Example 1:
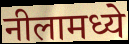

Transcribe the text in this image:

नीलामध्ये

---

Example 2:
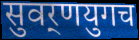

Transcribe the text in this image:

सुवर्णयुगच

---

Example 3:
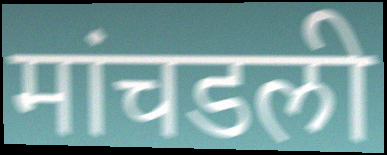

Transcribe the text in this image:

मांचडली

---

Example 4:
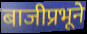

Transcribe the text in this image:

बाजीप्रभूने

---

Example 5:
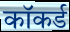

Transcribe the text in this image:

कॉकर्ड